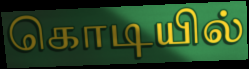
கொடியில்